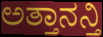
ಅತ್ತಾನನ್ತಿ